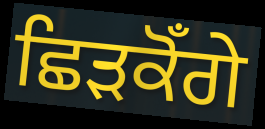
ਛਿੜਕੋਁਗੇ